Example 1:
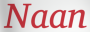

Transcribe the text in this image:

Naan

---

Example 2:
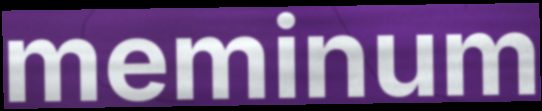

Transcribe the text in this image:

meminum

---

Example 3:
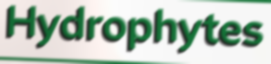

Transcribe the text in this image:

Hydrophytes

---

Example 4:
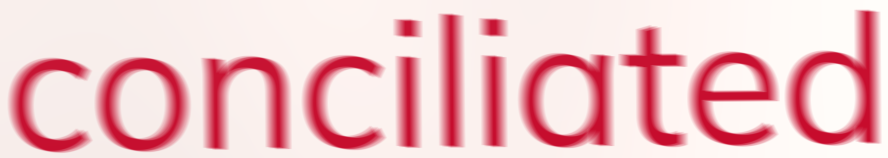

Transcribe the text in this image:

conciliated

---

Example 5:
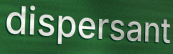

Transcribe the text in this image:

dispersant